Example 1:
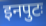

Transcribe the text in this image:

इनपुटः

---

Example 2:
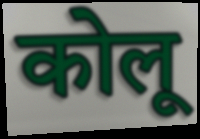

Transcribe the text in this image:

कोलू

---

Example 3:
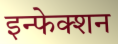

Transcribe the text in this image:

इन्‍फेक्‍शन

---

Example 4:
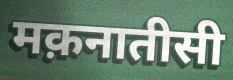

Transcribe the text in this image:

मक़नातीसी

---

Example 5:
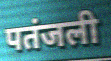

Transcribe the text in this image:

पतंजली